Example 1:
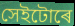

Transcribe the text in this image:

সেইটোৰে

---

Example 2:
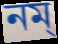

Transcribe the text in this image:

নম্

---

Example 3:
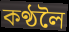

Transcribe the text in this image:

কণ্ঠলৈ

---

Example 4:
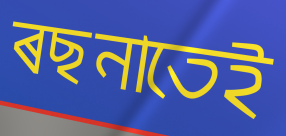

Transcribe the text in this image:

ৰছনাতেই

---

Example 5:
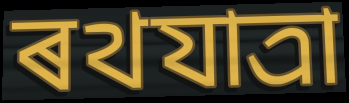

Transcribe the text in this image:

ৰথযাত্ৰা